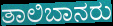
ತಾಲಿಬಾನರು